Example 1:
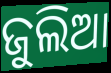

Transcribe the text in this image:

ଜୁଲିଆ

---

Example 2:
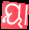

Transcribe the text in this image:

ୟା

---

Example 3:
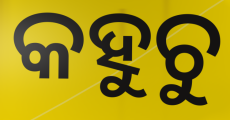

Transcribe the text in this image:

କହୁଚୁ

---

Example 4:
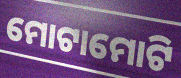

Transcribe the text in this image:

ମୋଟାମୋଟି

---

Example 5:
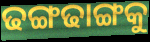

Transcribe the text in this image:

ଢଙ୍ଗଢାଙ୍ଗକୁ